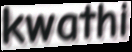
kwathi